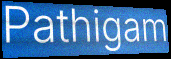
Pathigam